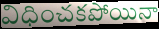
విధించకపోయినా